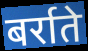
बर्राते